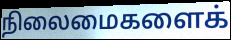
நிலைமைகளைக்